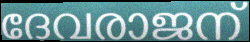
ദേവരാജന്